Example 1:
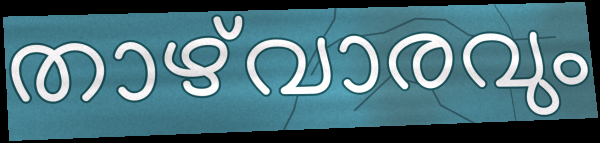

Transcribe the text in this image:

താഴ്‌വാരവും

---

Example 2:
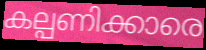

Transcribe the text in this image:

കല്പണിക്കാരെ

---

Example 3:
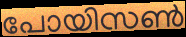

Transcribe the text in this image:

പോയിസൺ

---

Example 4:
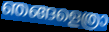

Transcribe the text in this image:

ഞങ്ങളെത്രാ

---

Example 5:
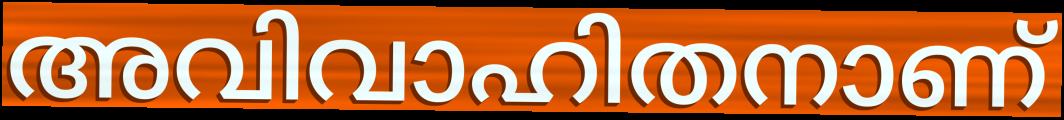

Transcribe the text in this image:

അവിവാഹിതനാണ്